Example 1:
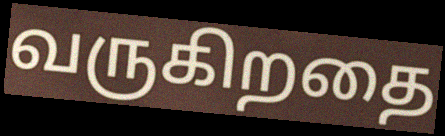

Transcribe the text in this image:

வருகிறதை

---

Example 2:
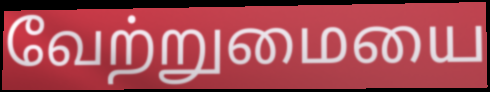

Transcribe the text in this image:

வேற்றுமையை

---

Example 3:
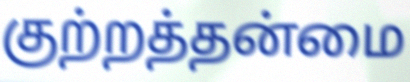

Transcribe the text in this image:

குற்றத்தன்மை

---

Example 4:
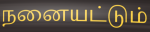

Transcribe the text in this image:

நனையட்டும்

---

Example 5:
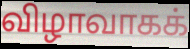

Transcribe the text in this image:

விழாவாகக்